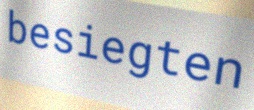
besiegten